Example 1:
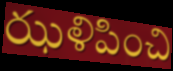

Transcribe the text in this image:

ఝళిపించి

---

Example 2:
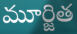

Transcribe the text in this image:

మూర్జిత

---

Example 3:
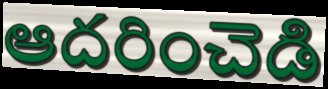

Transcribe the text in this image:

ఆదరించెడి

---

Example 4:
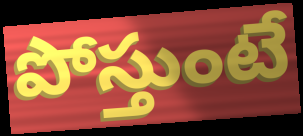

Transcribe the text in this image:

పోస్తుంటే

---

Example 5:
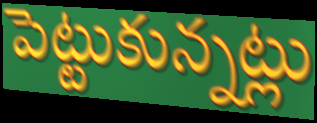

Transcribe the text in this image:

పెట్టుకున్నట్లు